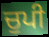
ਚੁਪੀ